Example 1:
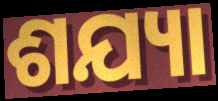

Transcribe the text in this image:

ଶଯ୍ୟା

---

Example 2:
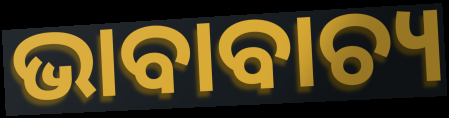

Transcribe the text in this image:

ଭାବାବାଚ୍ୟ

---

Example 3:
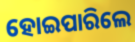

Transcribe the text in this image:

ହୋଇପାରିଲେ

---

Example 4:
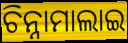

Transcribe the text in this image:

ଚିନ୍ନାମାଲାଇ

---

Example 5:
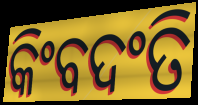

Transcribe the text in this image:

କିଂବଦଂତି